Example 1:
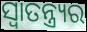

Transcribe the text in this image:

ସ୍ୱାତନ୍ତ୍ର୍ୟର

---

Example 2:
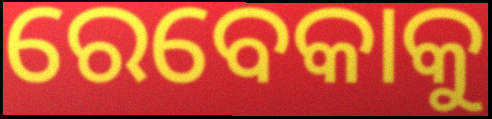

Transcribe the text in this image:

ରେବେକାକୁ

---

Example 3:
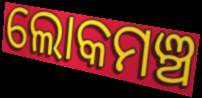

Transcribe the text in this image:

ଲୋକମଞ୍ଚ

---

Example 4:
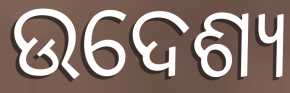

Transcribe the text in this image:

ଉଦେଶ୍ୟ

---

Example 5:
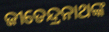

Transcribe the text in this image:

ଜୀତେନ୍ଦ୍ରନାଥଙ୍କ